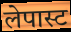
लेपास्ट